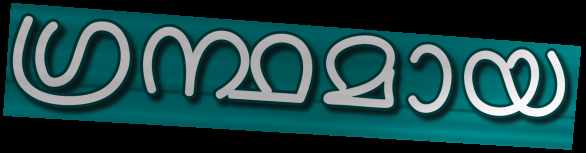
ഗ്രന്ഥമായ